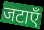
जटाएँ